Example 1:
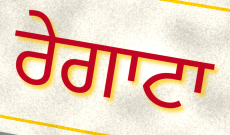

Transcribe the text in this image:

ਰੇਗਾਟਾ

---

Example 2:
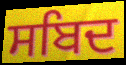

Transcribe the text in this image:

ਸਬਿਦ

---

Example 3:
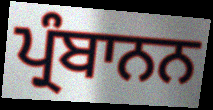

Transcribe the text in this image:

ਪ੍ਰੰਬਾਨਨ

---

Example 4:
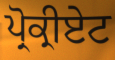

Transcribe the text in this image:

ਪ੍ਰੋਕ੍ਰੀਏਟ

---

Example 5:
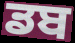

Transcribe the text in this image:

ਡਬ